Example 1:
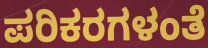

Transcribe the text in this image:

ಪರಿಕರಗಳಂತೆ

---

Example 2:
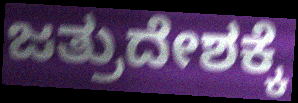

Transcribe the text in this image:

ಜತ್ರುದೇಶಕ್ಕೆ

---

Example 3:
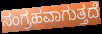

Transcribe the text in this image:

ಸಂಗ್ರಹವಾಗುತ್ತದೆ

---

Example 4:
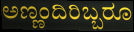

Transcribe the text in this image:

ಅಣ್ಣಂದಿರಿಬ್ಬರೂ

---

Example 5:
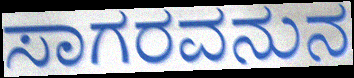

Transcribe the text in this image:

ಸಾಗರವನುನ